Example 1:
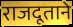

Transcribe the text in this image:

राजदूताने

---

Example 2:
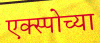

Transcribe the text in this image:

एक्स्पोच्या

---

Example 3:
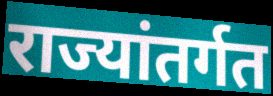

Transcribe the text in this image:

राज्यांतर्गत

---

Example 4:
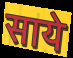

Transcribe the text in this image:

साये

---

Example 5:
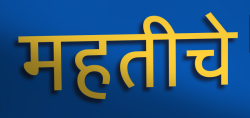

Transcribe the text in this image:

महतीचे